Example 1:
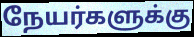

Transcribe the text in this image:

நேயர்களுக்கு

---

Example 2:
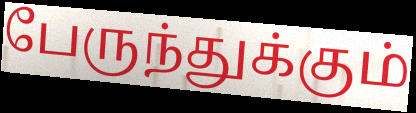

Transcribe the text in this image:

பேருந்துக்கும்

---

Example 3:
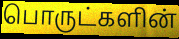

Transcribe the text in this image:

பொருட்களின்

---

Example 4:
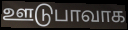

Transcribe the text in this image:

ஊடுபாவாக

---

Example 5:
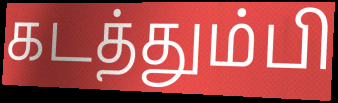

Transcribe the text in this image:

கடத்தும்பி